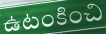
ఉటంకించి